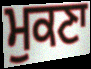
ਮੁਕਣਾ